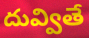
దువ్వితే